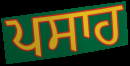
ਪਸਾਹ